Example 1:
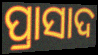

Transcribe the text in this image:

ପ୍ରାସାଦ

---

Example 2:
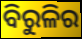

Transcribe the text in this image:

ବିରୁଳିର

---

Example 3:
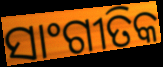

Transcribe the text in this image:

ସାଂଗୀତିକ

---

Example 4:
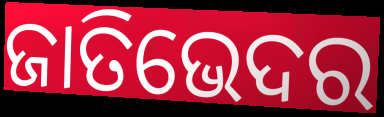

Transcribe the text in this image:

ଜାତିଭେଦର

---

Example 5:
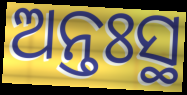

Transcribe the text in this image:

ଅନ୍ତଃସ୍ଥ